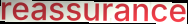
reassurance